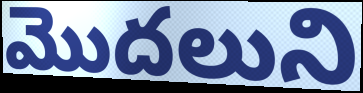
మొదలుని